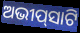
ଅଭୀପ୍‌ସାଟି